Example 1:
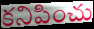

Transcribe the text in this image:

కనిపించు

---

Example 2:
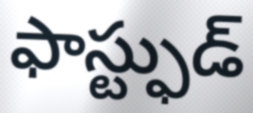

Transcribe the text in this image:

ఫాస్ట్ఫుడ్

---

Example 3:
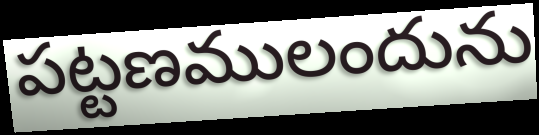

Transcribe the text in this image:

పట్టణములందును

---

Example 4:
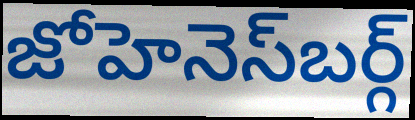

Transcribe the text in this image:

జోహెనెస్‍బర్గ్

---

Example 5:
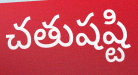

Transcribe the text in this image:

చతుషష్టి